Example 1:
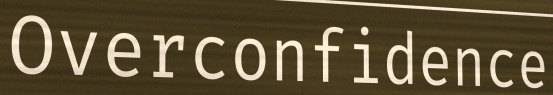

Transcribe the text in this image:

Overconfidence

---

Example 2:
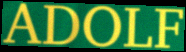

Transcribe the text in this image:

ADOLF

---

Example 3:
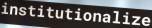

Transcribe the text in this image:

institutionalize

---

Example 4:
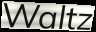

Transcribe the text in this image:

Waltz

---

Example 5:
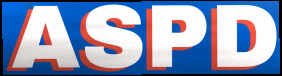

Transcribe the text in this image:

ASPD